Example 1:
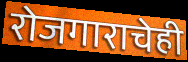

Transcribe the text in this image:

रोजगाराचेही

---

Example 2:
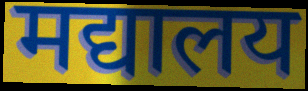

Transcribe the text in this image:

मद्यालय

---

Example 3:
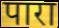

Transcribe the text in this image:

पारा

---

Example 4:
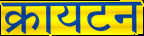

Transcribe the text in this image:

क्रायटन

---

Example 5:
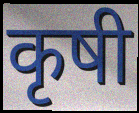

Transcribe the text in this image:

कृषी